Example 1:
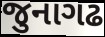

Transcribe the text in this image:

જુનાગઢ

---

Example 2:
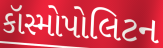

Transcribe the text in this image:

કૉસ્મોપોલિટન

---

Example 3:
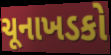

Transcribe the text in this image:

ચૂનાખડકો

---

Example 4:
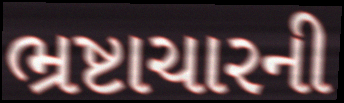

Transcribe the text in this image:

ભ્રષ્ટાચારની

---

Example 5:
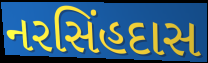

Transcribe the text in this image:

નરસિંહદાસ